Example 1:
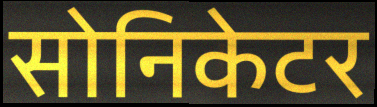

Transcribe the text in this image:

सोनिकेटर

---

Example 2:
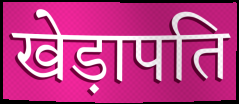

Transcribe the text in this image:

खेड़ापति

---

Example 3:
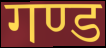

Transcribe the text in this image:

गण्ड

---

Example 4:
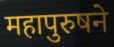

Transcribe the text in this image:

महापुरुषने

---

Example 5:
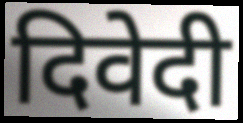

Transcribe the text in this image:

दिवेदी